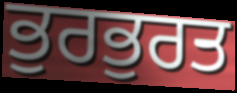
ਭੁਰਭੁਰਤ